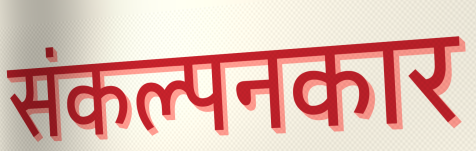
संकल्पनकार